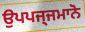
ਉਪਪਜ੍ਜਮਾਨੋ